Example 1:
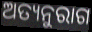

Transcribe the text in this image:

ଅତ୍ୟନୁରାଗ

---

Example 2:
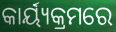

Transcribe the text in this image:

କାର୍ୟ୍ୟକ୍ରମରେ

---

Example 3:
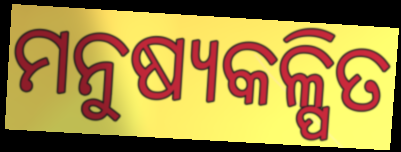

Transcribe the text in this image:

ମନୁଷ୍ୟକଳ୍ପିତ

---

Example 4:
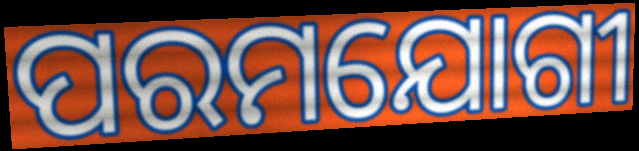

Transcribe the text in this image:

ପରମଯୋଗୀ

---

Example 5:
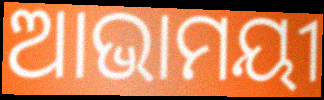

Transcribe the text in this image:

ଆଭାମୟୀ